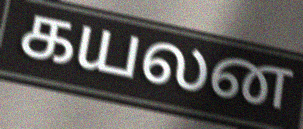
கயலன